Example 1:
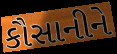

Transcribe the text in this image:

કૌસાનીને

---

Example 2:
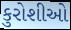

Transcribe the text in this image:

કુરોશીઓ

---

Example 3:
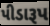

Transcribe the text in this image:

પીડારૂપ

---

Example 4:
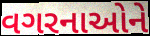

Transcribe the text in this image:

વગરનાઓને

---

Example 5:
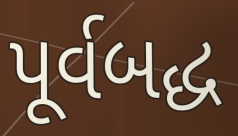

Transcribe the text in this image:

પૂર્વબદ્ધ